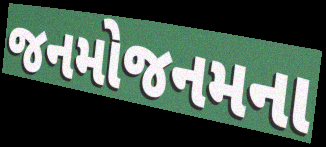
જનમોજનમના